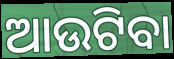
ଆଉଟିବା